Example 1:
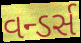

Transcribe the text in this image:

વન્ડર્સ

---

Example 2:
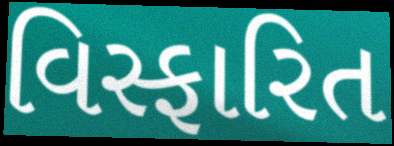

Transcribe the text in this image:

વિસ્ફારિત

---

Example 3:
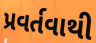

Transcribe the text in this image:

પ્રવર્તવાથી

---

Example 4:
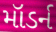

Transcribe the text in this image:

મૉડર્ન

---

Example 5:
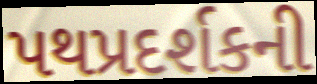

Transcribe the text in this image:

પથપ્રદર્શકની